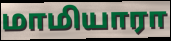
மாமியாரா